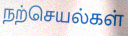
நற்செயல்கள்